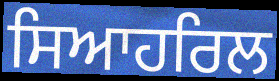
ਸਿਆਹਰਿਲ